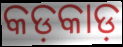
କଡ଼କାଡ଼